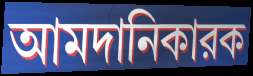
আমদানিকারক